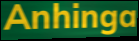
Anhinga